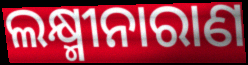
ଲକ୍ଷ୍ମୀନାରାଣ